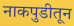
नाकपुडीतून